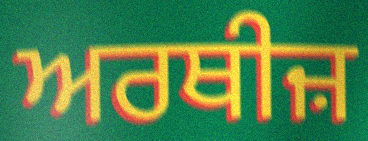
ਅਰਥੀਜ਼